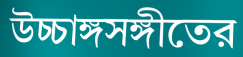
উচ্চাঙ্গসঙ্গীতের